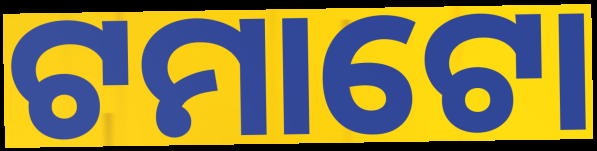
ଟମାଟୋ